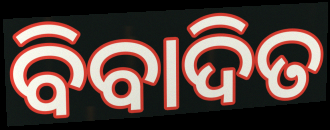
ବିବାଦିତ